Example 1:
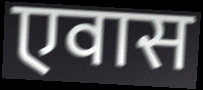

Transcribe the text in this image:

एवास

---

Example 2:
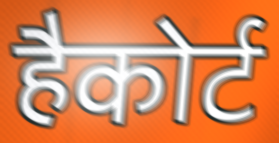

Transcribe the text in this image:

हैकोर्ट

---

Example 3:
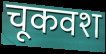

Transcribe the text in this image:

चूकवश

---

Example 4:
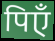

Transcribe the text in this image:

पिएँ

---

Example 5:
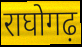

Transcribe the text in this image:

राघोगढ़